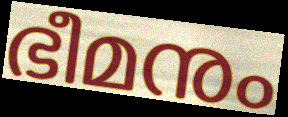
ഭീമനും